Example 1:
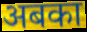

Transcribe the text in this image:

अबका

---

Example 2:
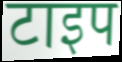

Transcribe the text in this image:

टाइप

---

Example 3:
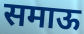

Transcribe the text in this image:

समाऊ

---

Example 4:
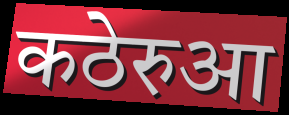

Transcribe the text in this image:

कठेरुआ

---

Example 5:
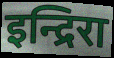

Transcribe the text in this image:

इन्द्रिरा